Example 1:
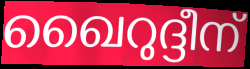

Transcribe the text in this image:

ഖൈറുദ്ദീന്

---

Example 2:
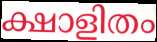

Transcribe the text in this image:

ക്ഷാളിതം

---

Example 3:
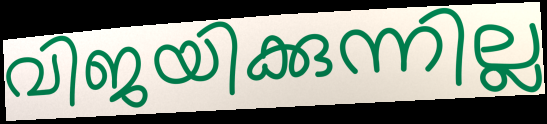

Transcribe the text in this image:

വിജയിക്കുന്നില്ല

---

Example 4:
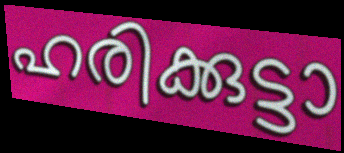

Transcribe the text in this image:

ഹരിക്കുട്ടാ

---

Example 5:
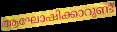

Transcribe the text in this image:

ആഘോഷിക്കാറുണ്ട്